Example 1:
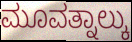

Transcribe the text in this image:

ಮೂವತ್ನಾಲ್ಕು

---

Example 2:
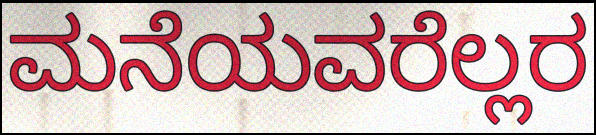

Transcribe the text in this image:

ಮನೆಯವರೆಲ್ಲರ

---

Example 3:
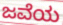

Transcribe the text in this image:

ಜವೆಯ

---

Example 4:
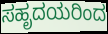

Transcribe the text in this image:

ಸಹೃದಯರಿಂದ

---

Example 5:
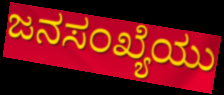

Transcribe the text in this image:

ಜನಸಂಖ್ಯೆಯು